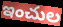
ఇంచుల